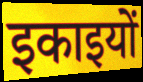
इकाइयों